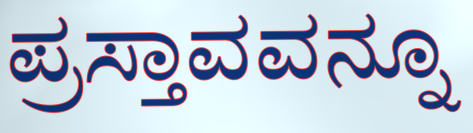
ಪ್ರಸ್ತಾವವನ್ನೂ